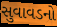
સુવાવડનો